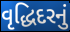
વૃદ્ધિદરનું